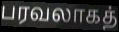
பரவலாகத்